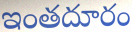
ఇంతదూరం